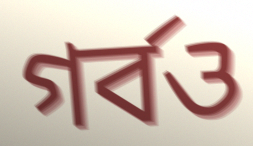
গর্বও